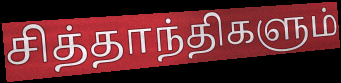
சித்தாந்திகளும்